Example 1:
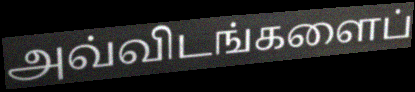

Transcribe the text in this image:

அவ்விடங்களைப்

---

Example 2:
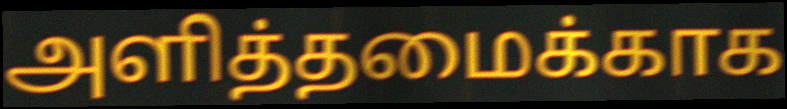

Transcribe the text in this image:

அளித்தமைக்காக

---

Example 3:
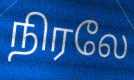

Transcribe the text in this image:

நிரலே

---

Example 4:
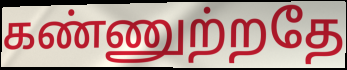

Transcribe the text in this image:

கண்ணுற்றதே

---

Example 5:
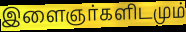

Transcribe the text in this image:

இளைஞர்களிடமும்